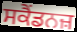
ਸਕੈਂਡਨਜ਼